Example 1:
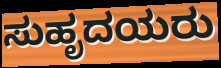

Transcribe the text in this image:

ಸುಹೃದಯರು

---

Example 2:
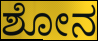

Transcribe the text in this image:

ಶೋನ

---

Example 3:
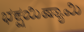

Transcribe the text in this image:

ಭಕ್ಷಯಿಷ್ಯಾಮಿ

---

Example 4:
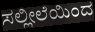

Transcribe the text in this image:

ಸಲ್ಲೀಲೆಯಿಂದ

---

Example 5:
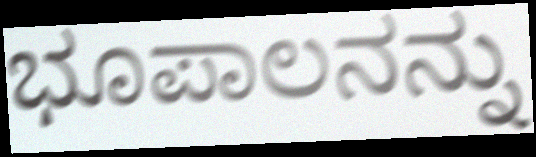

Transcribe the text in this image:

ಭೂಪಾಲನನ್ನು